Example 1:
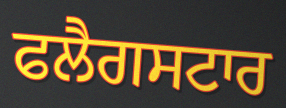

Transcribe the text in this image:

ਫਲੈਗਸਟਾਰ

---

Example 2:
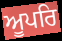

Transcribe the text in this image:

ਅੂਪਰਿ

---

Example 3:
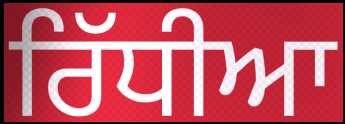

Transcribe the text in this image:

ਰਿੱਧੀਆ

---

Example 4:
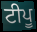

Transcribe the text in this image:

ਟੀਪੂ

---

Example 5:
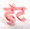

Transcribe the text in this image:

ਫੁੱਟ